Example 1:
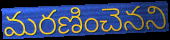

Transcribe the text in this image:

మరణించెనని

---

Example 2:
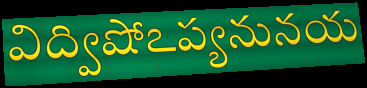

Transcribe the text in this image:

విద్విషోఽప్యనునయ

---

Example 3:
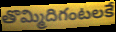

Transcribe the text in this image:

తొమ్మిదిగంటలకే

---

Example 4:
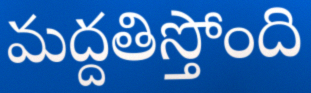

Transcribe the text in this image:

మద్దతిస్తోంది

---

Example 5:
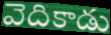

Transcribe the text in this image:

వెదికాడు